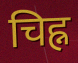
चिह्न